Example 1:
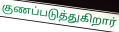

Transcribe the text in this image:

குணப்படுத்துகிறார்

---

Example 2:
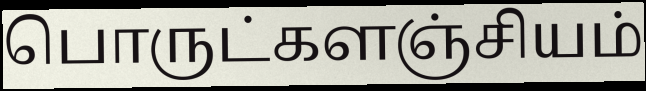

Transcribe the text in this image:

பொருட்களஞ்சியம்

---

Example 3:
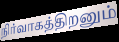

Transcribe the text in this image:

நிர்வாகத்திறனும்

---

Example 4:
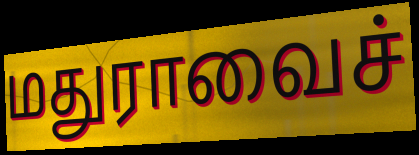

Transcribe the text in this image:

மதுராவைச்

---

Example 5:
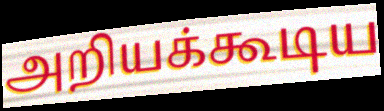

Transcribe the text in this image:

அறியக்கூடிய